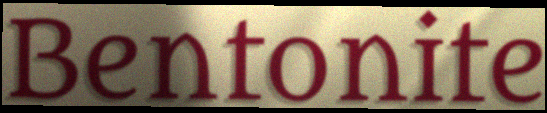
Bentonite